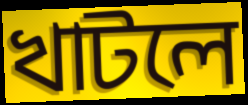
খাটলে